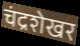
चंद्रशेखर